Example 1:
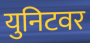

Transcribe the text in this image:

युनिटवर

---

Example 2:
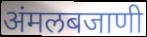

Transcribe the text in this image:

अंमलबजाणी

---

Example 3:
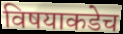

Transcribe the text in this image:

विषयाकडेच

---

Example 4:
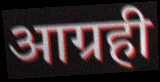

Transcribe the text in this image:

आग्रही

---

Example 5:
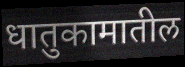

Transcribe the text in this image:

धातुकामातील